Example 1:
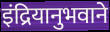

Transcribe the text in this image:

इंद्रियानुभवाने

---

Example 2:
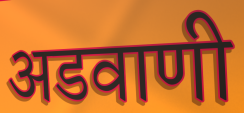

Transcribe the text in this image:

अडवाणी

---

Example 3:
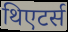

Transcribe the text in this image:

थिएटर्स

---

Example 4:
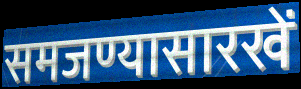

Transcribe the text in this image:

समजण्यासारखें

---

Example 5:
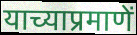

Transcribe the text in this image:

याच्याप्रमाणें